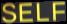
SELF